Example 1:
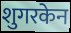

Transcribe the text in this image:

शुगरकेन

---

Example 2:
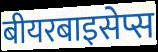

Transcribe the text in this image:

बीयरबाइसेप्स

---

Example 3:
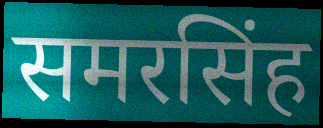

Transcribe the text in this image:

समरसिंह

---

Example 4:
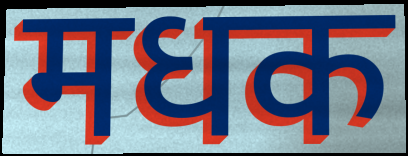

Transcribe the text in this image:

मधक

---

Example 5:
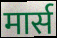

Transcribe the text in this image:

मार्स